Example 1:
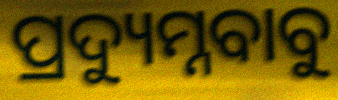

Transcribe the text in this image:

ପ୍ରଦ୍ୟୁମ୍ନବାବୁ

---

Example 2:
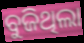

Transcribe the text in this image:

ବୁଜିଥିଲା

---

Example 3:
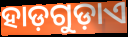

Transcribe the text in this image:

ହାଡ଼ଗୁଡ଼ାଏ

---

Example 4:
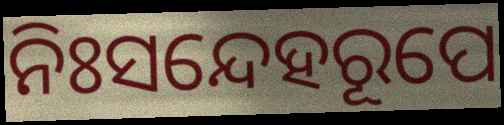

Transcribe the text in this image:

ନିଃସନ୍ଦେହରୂପେ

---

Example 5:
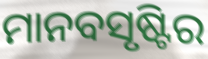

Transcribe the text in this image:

ମାନବସୃଷ୍ଟିର